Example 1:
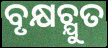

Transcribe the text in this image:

ବୃକ୍ଷଚ୍ଯୁତ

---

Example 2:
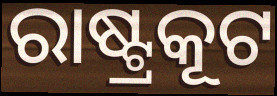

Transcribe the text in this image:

ରାଷ୍ଟ୍ରକୂଟ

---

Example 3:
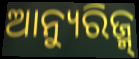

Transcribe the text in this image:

ଆନ୍ୟୁରିଜ୍ମ୍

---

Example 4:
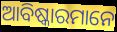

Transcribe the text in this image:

ଆବିଷ୍କାରମାନେ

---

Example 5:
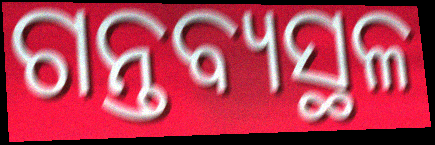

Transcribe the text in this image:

ଗନ୍ତବ୍ୟସ୍ଥଳ